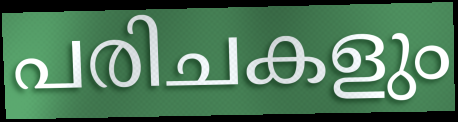
പരിചകളും